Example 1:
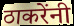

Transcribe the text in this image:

ठाकरेंनी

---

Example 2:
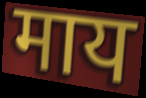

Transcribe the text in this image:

माय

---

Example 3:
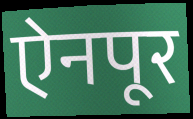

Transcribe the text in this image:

ऐनपूर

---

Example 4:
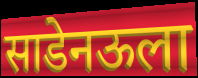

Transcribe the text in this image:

साडेनऊला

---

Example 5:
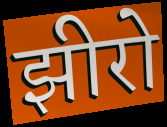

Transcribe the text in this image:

झीरो